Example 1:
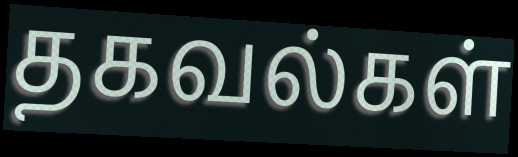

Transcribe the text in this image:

தகவல்கள்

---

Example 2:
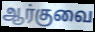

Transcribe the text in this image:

ஆர்குவை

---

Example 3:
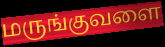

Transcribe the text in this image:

மருங்குவளை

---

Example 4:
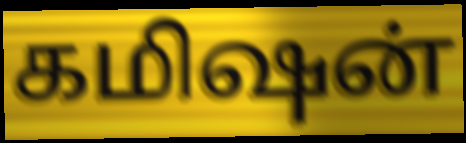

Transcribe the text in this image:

கமிஷன்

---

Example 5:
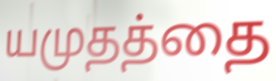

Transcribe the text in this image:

யமுதத்தை